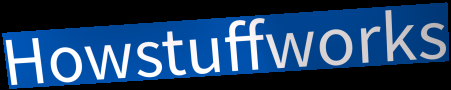
Howstuffworks